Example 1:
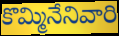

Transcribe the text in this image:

కొమ్మినేనివారి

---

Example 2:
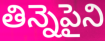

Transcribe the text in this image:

తిన్నెపైని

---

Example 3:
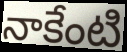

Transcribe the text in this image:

నాకేంటి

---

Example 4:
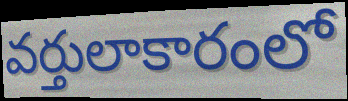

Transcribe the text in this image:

వర్తులాకారంలో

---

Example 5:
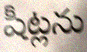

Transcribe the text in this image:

షీట్లను